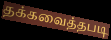
தக்கவைத்தபடி